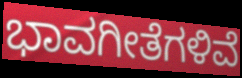
ಭಾವಗೀತೆಗಳಿವೆ